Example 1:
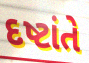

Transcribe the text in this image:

દષ્ટાંતે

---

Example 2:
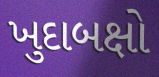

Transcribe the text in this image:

ખુદાબક્ષો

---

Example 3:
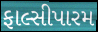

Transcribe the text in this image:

ફાલ્સીપારમ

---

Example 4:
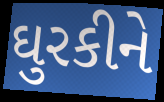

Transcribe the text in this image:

ઘુરકીને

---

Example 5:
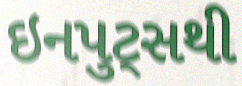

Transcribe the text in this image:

ઇનપુટ્સથી